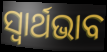
ସ୍ଵାର୍ଥଭାବ